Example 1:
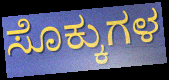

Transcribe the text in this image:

ಸೊಕ್ಕುಗಳ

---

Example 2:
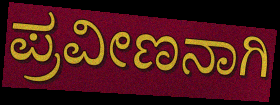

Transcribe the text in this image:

ಪ್ರವೀಣನಾಗಿ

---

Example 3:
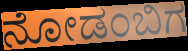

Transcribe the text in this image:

ನೋಡಂಬಿಗ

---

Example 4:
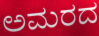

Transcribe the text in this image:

ಅಮರದ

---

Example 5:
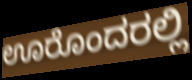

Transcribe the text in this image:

ಊರೊಂದರಲ್ಲಿ